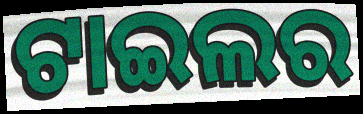
ଟାଇଲର